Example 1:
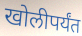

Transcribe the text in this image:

खोलीपर्यंत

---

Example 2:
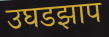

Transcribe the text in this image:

उघडझाप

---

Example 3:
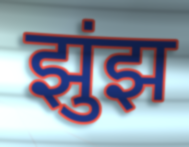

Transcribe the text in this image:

झुंझ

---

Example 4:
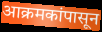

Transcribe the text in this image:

आक्रमकांपासून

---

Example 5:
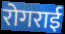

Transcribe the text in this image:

रोगराई